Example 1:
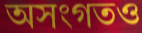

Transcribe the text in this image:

অসংগতও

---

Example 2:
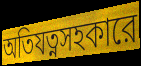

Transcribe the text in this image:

অতিযত্নসহকারে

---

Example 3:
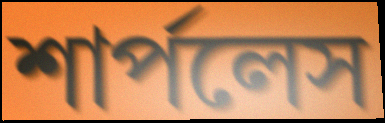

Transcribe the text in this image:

শার্পলেস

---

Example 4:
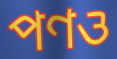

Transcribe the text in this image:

পণও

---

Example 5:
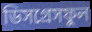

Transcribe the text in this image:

ডিসগ্রেসফুল